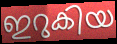
ഇറുകിയ